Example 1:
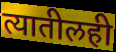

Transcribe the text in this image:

त्यातीलही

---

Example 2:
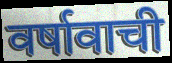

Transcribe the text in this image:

वर्षावाची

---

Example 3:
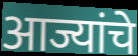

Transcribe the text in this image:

आज्यांचे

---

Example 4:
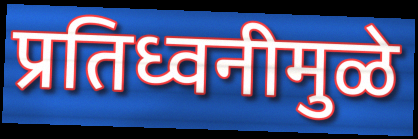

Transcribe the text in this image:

प्रतिध्वनीमुळे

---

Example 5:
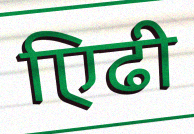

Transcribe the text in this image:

एिढी